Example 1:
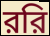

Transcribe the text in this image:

ররি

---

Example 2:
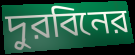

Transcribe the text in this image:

দুরবিনের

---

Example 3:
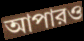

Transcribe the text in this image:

আপারও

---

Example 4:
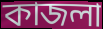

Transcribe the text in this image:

কাজলা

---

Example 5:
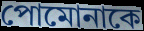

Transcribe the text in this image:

পোমোনাকে